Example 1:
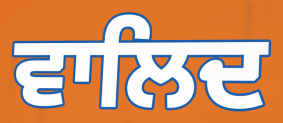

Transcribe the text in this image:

ਵਾਲਿਦ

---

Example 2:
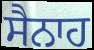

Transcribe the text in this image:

ਸੈਨਾਹ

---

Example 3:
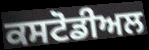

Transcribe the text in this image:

ਕਸਟੋਡੀਅਲ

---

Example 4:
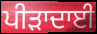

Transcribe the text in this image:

ਪੀੜਾਦਾਈ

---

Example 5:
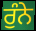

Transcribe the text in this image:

ਰੁੰਨੇ